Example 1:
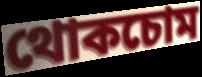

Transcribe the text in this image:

থোকচোম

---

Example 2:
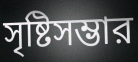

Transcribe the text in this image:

সৃষ্টিসম্ভার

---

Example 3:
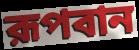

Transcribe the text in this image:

রূপবান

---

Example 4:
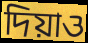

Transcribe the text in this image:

দিয়াও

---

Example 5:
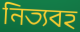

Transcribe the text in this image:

নিত্যবহ